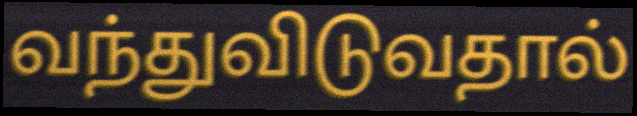
வந்துவிடுவதால்